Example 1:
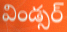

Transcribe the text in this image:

విండ్సర్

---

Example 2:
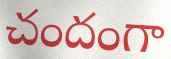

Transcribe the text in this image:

చందంగా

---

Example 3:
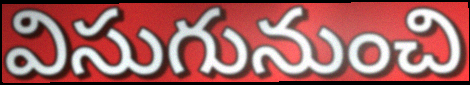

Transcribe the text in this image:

విసుగునుంచి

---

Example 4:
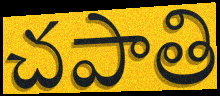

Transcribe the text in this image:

చపాతి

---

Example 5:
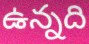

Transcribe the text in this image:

ఉన్నది